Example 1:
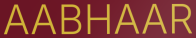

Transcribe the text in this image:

AABHAAR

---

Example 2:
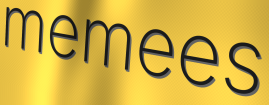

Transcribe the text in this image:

memees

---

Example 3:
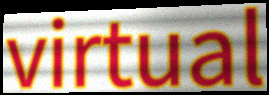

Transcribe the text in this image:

virtual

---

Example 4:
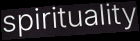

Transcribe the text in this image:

spirituality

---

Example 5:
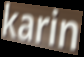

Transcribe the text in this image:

karin